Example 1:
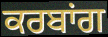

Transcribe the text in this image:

ਕਰਬਾਂਗ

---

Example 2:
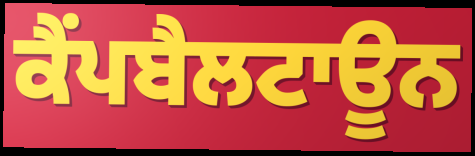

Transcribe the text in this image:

ਕੈਂਪਬੈਲਟਾਊਨ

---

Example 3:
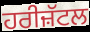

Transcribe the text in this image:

ਹਰੀਜ਼ੱਟਲ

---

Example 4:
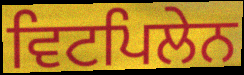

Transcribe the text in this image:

ਵਿਟਪਿਲੇਨ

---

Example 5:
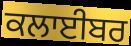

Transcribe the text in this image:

ਕਲਾਈਬਰ